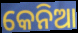
କେନିଆ